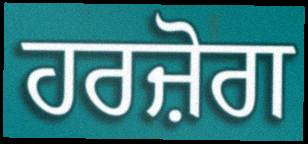
ਹਰਜ਼ੋਗ